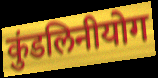
कुंडलिनीयोग